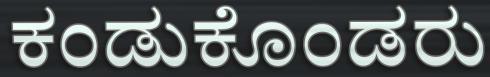
ಕಂಡುಕೊಂಡರು